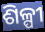
ଶିଳ୍ପୀ